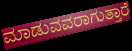
ಮಾಡುವವರಾಗುತ್ತಾರೆ